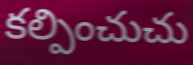
కల్పించుచు